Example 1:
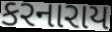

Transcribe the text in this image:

કરનારાય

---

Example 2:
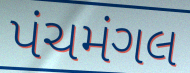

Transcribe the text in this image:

પંચમંગલ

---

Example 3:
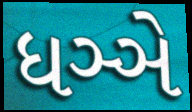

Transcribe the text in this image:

ધઞ્ઞે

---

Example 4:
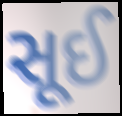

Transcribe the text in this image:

સૂઈ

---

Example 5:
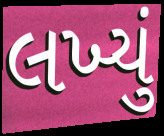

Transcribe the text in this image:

લખ્યું